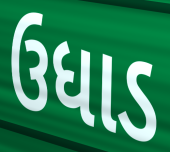
ઉધાડ